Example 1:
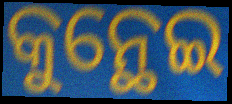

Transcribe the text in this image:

କୁନ୍ଥେଇ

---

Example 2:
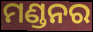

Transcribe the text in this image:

ମଣ୍ଡନର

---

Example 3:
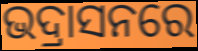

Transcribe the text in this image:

ଭଦ୍ରାସନରେ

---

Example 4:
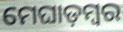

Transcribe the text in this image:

ମେଘାଡ଼ମ୍ବର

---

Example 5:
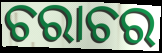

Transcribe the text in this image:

ଚରାଚର